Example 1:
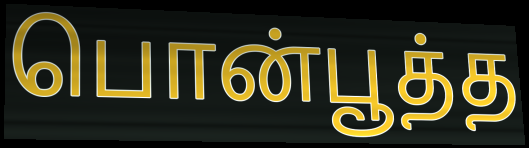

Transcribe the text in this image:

பொன்பூத்த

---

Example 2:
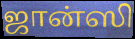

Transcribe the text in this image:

ஜான்ஸி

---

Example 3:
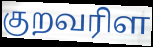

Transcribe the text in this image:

குறவரிள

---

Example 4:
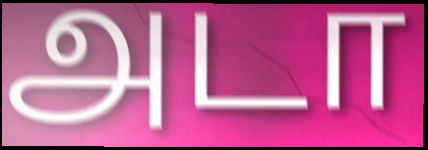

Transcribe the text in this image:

அடா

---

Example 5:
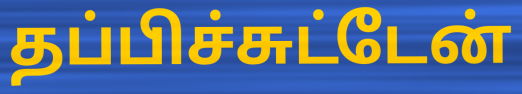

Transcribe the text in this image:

தப்பிச்சுட்டேன்